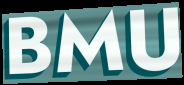
BMU